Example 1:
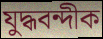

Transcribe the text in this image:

যুদ্ধবন্দীক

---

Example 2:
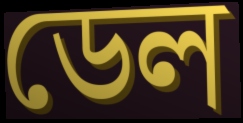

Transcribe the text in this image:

ডেল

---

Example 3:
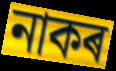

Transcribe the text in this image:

নাকৰ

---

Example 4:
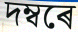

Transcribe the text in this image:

দম্বৰে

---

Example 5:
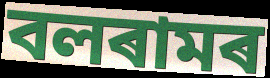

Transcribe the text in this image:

বলৰামৰ